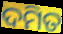
ଦମିତ